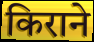
किराने